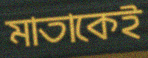
মাতাকেই